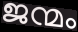
ജന്മം